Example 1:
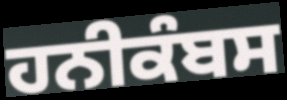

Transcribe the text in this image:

ਹਨੀਕੰਬਸ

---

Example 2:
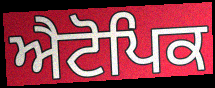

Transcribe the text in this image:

ਐਟੋਪਿਕ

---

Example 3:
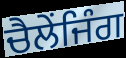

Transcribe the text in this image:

ਚੈਲੇਂਜਿੰਗ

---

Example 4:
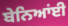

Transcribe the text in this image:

ਬੇਨਿਆਂਈ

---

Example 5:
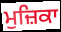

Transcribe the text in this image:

ਮੁਜ਼ਿਕਾ